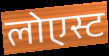
लोएस्ट